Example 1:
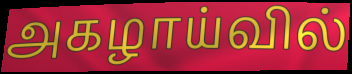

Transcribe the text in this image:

அகழாய்வில்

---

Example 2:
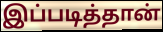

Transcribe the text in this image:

இப்படித்தான்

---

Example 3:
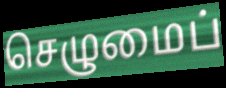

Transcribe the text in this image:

செழுமைப்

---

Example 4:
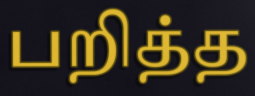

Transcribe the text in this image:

பறித்த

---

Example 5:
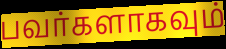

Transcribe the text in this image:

பவர்களாகவும்